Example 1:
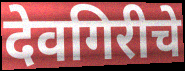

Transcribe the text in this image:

देवगिरीचे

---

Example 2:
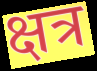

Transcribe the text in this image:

क्षत्र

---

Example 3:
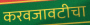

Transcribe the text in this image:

करवजावटीचा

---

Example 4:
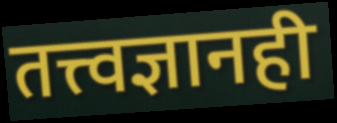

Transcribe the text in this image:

तत्त्वज्ञानही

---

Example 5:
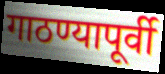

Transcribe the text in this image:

गाठण्यापूर्वी